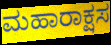
ಮಹಾರಾಕ್ಷಸ